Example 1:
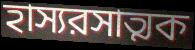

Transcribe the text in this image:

হাস্যরসাত্মক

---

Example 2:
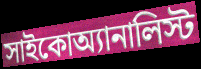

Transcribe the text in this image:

সাইকোঅ্যানালিস্ট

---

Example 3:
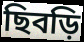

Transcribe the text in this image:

ছিবড়ি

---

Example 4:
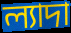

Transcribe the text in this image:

ল্যাদা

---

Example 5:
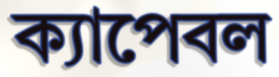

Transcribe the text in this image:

ক্যাপেবল